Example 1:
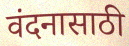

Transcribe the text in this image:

वंदनासाठी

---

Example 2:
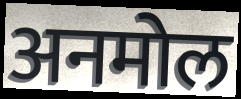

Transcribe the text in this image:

अनमोल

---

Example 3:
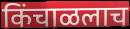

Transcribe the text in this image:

किंचाळलाच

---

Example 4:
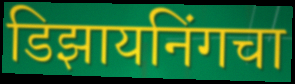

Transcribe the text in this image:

डिझायनिंगचा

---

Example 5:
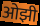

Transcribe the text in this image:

ओझी